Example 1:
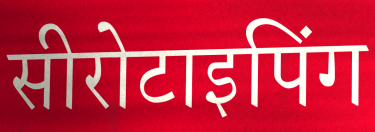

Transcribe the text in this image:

सीरोटाइपिंग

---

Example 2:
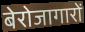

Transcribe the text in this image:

बेरोजागारों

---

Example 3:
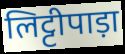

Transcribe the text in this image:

लिट्टीपाड़ा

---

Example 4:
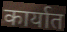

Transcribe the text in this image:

कार्यात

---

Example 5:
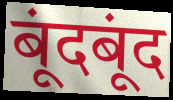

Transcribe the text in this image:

बूंदबूंद